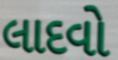
લાદવો